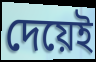
দেয়েই